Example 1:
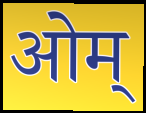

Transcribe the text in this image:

ओम्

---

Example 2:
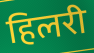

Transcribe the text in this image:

हिलरी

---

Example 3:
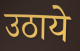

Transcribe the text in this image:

उठाये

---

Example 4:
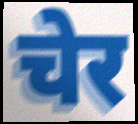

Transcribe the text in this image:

चेर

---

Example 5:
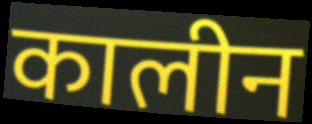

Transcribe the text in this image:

कालीन